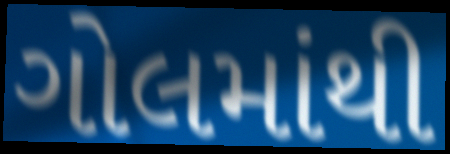
ગોલમાંથી